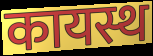
कायस्थ